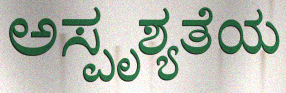
ಅಸ್ಪೃಶ್ಯತೆಯ